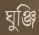
ঘুঞ্জি